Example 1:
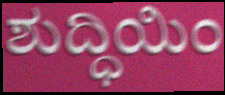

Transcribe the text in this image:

ಶುದ್ಧಿಯಿಂ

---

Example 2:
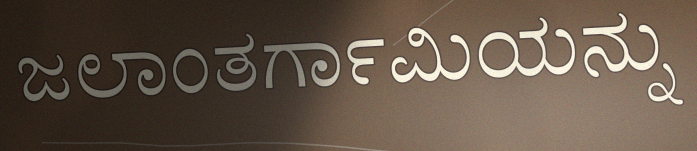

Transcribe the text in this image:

ಜಲಾಂತರ್ಗಾಮಿಯನ್ನು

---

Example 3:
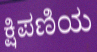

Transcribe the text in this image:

ಕ್ಷಿಪಣಿಯ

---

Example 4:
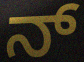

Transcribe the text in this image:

ನ್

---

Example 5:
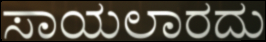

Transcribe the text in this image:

ಸಾಯಲಾರದು